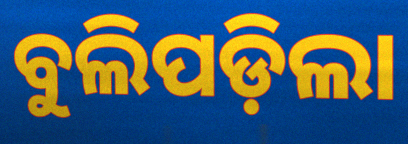
ବୁଲିପଡ଼ିଲା